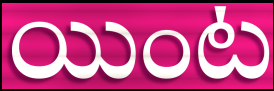
యింట